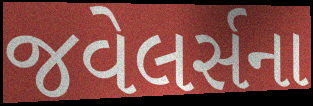
જવેલર્સના